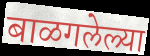
बाळगलेल्या